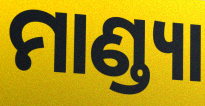
ମାଣ୍ଡ୍ୟା